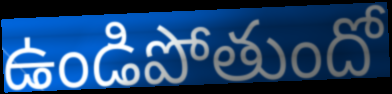
ఉండిపోతుందో